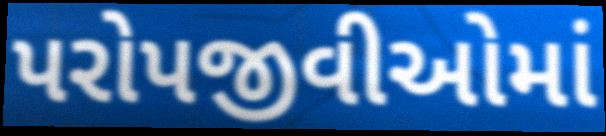
પરોપજીવીઓમાં